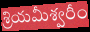
శ్రియమీశ్వరీం